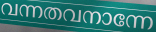
വന്നതവനാന്നേ